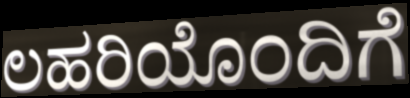
ಲಹರಿಯೊಂದಿಗೆ